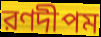
রণদীপম